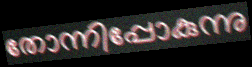
തോന്നിപ്പോകുന്നു